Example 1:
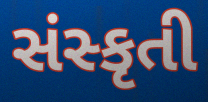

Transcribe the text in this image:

સંસ્કૃતી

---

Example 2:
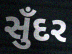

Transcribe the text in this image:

સુઁદર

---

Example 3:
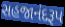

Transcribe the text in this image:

સહજાનંદરૂપ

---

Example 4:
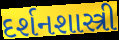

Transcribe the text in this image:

દર્શનશાસ્ત્રી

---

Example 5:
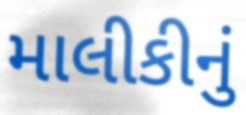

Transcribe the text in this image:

માલીકીનું